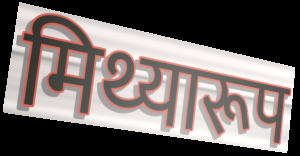
मिथ्यारूप